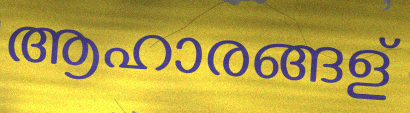
ആഹാരങ്ങള്